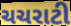
ચચરાટી